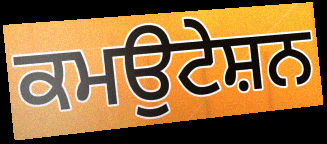
ਕਮਉਟੇਸ਼ਨ